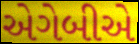
એગેબીએ